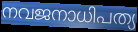
നവജനാധിപത്യ